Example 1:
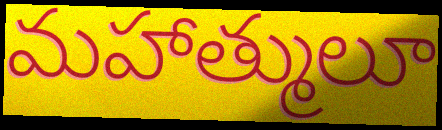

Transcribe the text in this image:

మహాత్ములూ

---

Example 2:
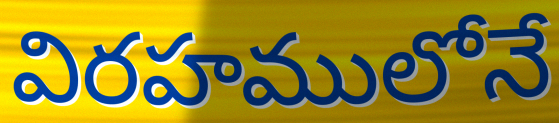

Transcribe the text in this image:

విరహములోనే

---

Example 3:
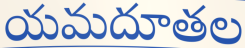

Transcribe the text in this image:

యమదూతల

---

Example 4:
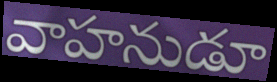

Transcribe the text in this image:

వాహనుడూ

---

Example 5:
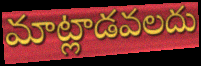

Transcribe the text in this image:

మాట్లాడవలదు